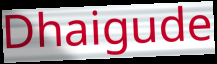
Dhaigude